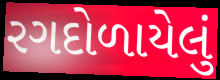
રગદોળાયેલું